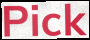
Pick